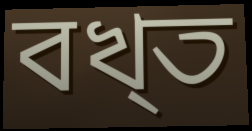
বখ্ত